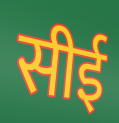
सीई